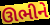
ઊભીને